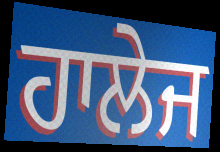
ਹਾਲੇਜ